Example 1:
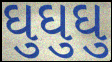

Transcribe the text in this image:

ઘુઘુઘુ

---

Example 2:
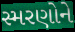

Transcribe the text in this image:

સ્મરણોને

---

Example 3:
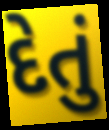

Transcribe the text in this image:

દેતું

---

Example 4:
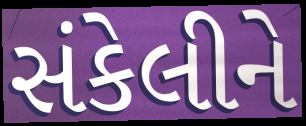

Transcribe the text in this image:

સંકેલીને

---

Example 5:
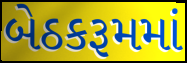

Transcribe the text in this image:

બેઠકરૂમમાં